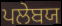
ਪਲੇਬਯ